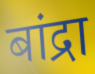
बांद्रा